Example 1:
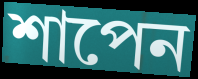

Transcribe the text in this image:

শাপেন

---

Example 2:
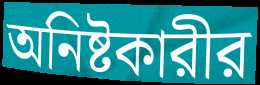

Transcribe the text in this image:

অনিষ্টকারীর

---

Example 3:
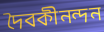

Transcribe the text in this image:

দৈবকীনন্দন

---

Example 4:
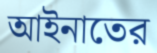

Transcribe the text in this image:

আইনাতের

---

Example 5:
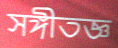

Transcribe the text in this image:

সঙ্গীতজ্ঞ